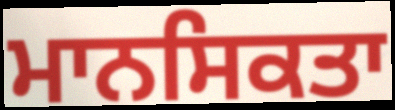
ਮਾਨਸਿਕਤਾ